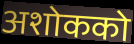
अशोकको